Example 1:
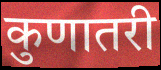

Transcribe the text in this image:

कुणातरी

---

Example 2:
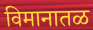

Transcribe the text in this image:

विमानातळ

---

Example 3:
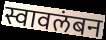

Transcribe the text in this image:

स्वावलंबन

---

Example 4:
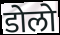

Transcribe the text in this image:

डोलो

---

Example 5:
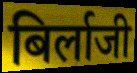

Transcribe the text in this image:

बिर्लाजी